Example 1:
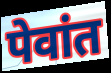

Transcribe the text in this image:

पेवांत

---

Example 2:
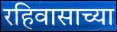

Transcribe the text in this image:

रहिवासाच्या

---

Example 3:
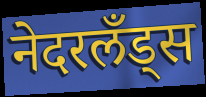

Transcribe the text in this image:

नेदरलँड्स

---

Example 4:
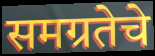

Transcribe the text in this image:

समग्रतेचे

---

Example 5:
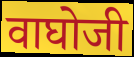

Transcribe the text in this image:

वाघोजी